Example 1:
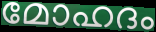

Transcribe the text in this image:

മോഹദം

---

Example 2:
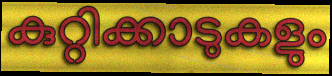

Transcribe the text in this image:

കുറ്റിക്കാടുകളും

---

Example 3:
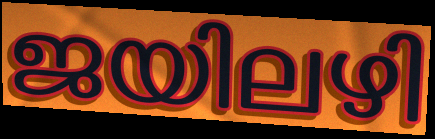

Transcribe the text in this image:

ജയിലഴി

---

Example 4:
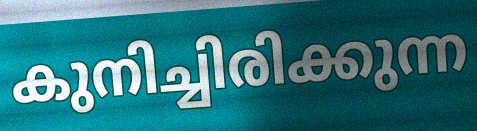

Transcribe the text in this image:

കുനിച്ചിരിക്കുന്ന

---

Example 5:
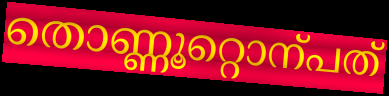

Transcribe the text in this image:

തൊണ്ണൂറ്റൊന്പത്